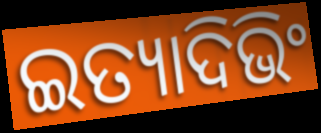
ଇତ୍ୟାଦିଭିଂ